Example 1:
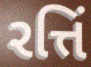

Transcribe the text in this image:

રત્તિં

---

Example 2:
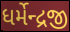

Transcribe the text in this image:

ધર્મેન્દ્રજી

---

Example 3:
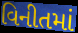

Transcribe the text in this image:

વિનીતમાં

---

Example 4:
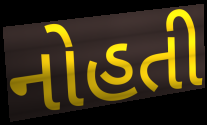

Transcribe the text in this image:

નોહતી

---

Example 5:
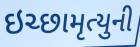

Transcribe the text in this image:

ઇચ્છામૃત્યુની